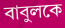
বাবুলকে